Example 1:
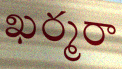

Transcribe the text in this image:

ఖర్మరా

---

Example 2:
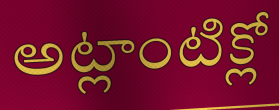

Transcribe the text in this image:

అట్లాంటిక్లో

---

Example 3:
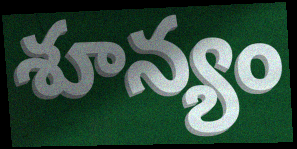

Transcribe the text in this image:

శూన్యం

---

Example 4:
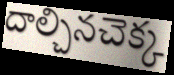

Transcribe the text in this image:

దాల్చినచెక్క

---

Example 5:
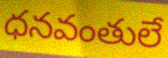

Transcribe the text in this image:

ధనవంతులే